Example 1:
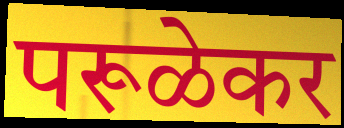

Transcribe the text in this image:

परूळेकर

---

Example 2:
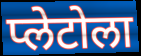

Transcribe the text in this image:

प्लेटोला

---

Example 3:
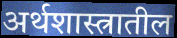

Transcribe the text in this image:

अर्थशास्त्रातील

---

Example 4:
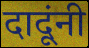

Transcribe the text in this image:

दादूंनी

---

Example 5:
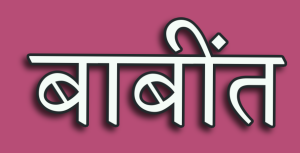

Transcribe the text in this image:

बाबींत